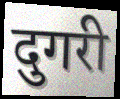
दुगरी